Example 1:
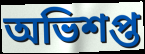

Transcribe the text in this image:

অভিশপ্ত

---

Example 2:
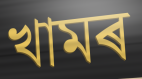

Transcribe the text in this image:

খামৰ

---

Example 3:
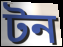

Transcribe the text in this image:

টন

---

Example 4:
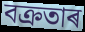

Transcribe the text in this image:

বক্ৰতাৰ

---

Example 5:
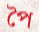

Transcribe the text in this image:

পৈ